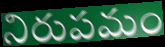
నిరుపమం